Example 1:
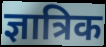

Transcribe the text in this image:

ज्ञात्रिक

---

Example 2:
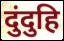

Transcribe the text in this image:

दुंदुहि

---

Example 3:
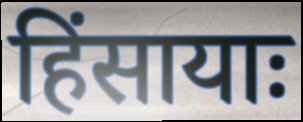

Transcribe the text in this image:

हिंसायाः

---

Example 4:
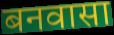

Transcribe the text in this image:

बनवासा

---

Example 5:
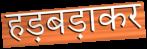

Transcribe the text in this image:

हड़बड़ाकर